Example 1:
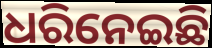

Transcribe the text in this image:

ଧରିନେଇଛି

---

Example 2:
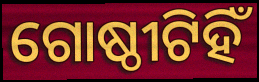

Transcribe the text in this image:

ଗୋଷ୍ଠୀଟିହିଁ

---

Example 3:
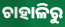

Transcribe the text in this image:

ଚାହାଳିରୁ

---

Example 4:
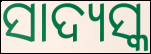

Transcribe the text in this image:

ସାଦ୍ୟସ୍କ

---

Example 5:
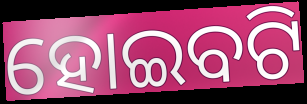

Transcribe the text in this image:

ହୋଇବଟି